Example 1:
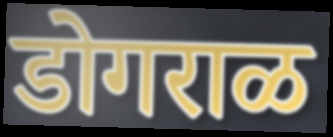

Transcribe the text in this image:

डोगराळ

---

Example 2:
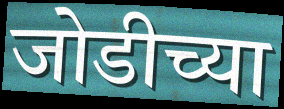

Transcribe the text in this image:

जोडीच्या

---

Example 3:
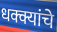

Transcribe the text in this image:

धक्क्यांचे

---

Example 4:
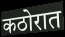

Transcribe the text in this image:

कठोरात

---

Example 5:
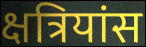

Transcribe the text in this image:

क्षत्रियांस